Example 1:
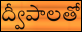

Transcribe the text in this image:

ద్వీపాలతో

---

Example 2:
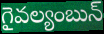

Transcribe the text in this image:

గైవల్యంబున్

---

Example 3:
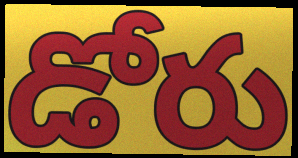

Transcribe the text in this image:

డోరు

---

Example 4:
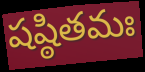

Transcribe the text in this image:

షష్ఠితమః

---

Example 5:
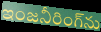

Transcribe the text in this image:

ఇంజనీరింగ్‌ను